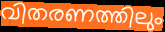
വിതരണത്തിലും